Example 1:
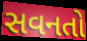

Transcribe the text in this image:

સવનતો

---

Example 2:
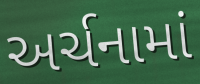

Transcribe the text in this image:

અર્ચનામાં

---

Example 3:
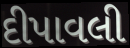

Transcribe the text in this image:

દીપાવલી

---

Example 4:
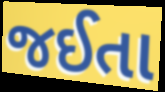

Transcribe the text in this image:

જઈતા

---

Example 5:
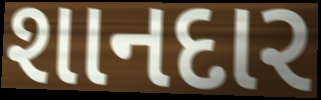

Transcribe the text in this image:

શાનદાર